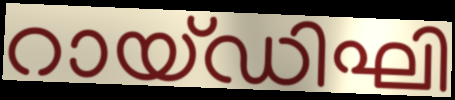
റായ്ഡിഘി